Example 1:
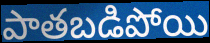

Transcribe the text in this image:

పాతబడిపోయి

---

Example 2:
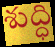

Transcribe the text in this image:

శుద్ధి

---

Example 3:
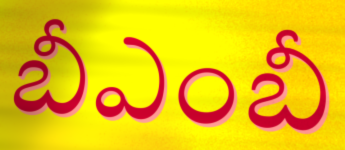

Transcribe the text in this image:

బీఎంబీ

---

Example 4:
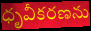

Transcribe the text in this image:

ధృవీకరణను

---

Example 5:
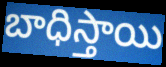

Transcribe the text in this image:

బాధిస్తాయి